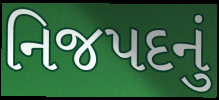
નિજપદનું